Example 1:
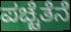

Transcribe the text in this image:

ಪಚ್ಚೆತೆನೆ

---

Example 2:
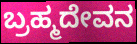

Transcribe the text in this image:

ಬ್ರಹ್ಮದೇವನ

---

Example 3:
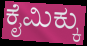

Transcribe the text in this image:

ಕೈಮಿಕ್ಕು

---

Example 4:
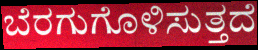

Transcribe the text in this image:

ಬೆರಗುಗೊಳಿಸುತ್ತದೆ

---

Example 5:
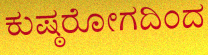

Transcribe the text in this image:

ಕುಷ್ಠರೋಗದಿಂದ